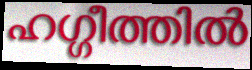
ഹഗ്ഗീത്തിൽ